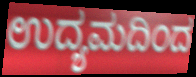
ಉದ್ಯಮದಿಂದ